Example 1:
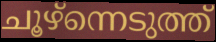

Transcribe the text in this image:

ചൂഴ്ന്നെടുത്ത്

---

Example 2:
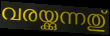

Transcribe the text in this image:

വരയ്ക്കുന്നതു്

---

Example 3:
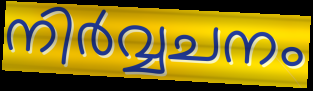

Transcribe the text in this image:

നിർവ്വചനം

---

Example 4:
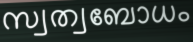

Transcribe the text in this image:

സ്വത്വബോധം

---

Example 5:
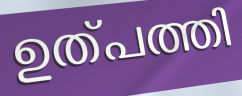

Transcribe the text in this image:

ഉത്പത്തി